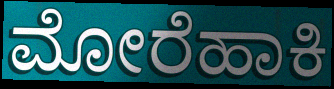
ಮೋರೆಹಾಕಿ